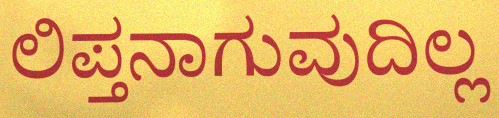
ಲಿಪ್ತನಾಗುವುದಿಲ್ಲ